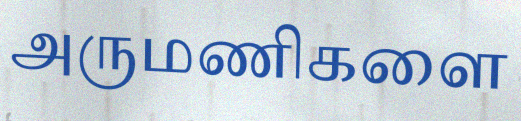
அருமணிகளை